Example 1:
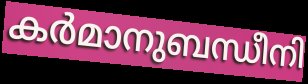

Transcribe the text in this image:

കർമാനുബന്ധീനി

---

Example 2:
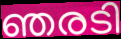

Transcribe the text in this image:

ഞരടി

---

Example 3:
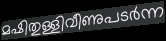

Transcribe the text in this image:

മഷിതുള്ളിവീണുപടർന്ന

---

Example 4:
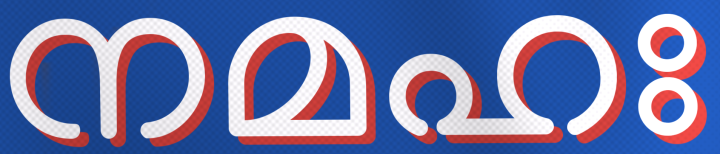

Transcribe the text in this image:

നമഹഃ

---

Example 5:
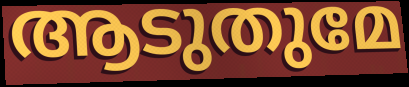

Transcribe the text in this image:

ആടുതുമേ